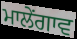
ਮਾਲੇਂਗਾਵ